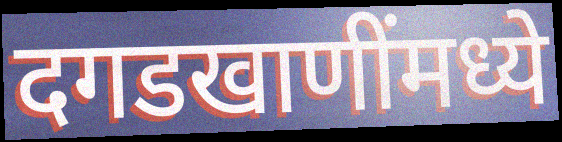
दगडखाणींमध्ये